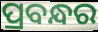
ପ୍ରବନ୍ଧର